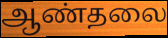
ஆண்தலை